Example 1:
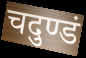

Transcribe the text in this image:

चदुण्डं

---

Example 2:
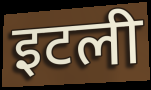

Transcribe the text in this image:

इटली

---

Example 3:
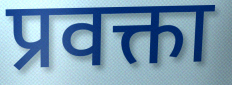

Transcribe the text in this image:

प्रवक्ता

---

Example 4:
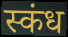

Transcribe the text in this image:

स्कंध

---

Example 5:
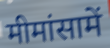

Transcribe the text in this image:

मीमांसामें